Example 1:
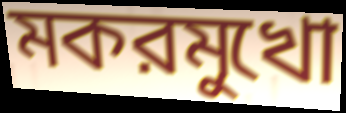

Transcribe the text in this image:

মকরমুখো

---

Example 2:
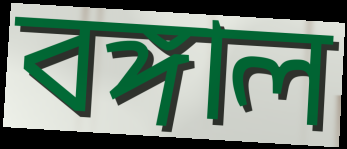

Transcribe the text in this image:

বঙ্গাল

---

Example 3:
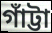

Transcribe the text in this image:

গাঁট্টা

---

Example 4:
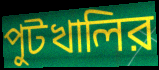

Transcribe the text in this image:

পুটখালির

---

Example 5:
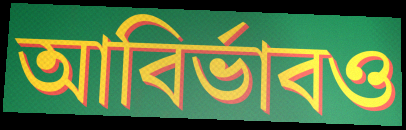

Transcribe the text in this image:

আবির্ভাবও